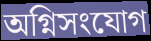
অগ্নিসংযোগ